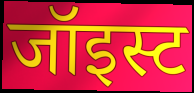
जॉइस्ट